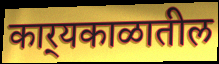
कार्यकाळातील